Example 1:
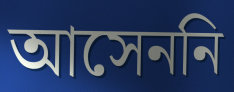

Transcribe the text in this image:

আসেননি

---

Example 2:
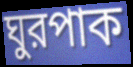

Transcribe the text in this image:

ঘুরপাক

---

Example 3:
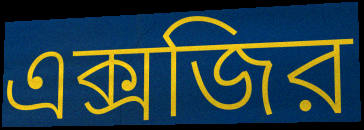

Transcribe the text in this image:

এক্সজির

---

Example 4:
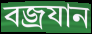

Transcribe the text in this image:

বজ্রযান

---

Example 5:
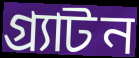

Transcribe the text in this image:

গ্র্যাটন